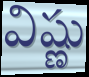
విష్ణు